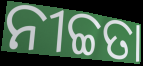
ନୀଚ୍ଚତା